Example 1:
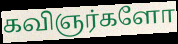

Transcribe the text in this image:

கவிஞர்களோ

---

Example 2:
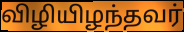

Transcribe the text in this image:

விழியிழந்தவர்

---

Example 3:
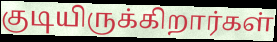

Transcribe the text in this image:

குடியிருக்கிறார்கள்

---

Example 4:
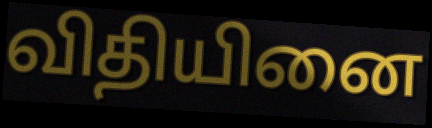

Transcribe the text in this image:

விதியினை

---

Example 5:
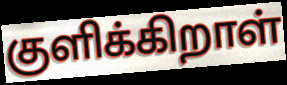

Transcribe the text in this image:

குளிக்கிறாள்